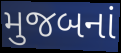
મુજબનાં